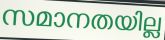
സമാനതയില്ല